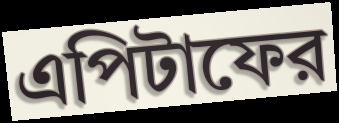
এপিটাফের